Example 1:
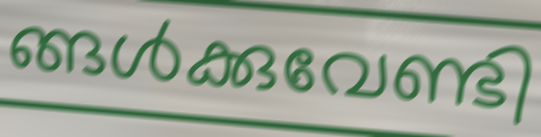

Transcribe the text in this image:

ങ്ങൾക്കുവേണ്ടി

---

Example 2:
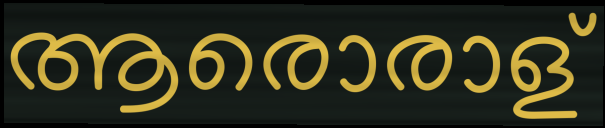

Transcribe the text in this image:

ആരൊരാള്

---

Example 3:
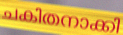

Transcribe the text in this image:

ചകിതനാക്കി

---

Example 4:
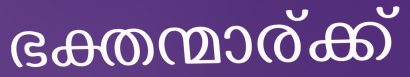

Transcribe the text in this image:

ഭക്തന്മാര്ക്ക്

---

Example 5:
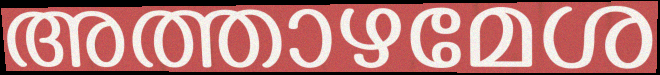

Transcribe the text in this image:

അത്താഴമേശ